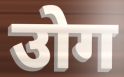
उोग